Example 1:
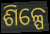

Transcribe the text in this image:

ଶିଳ୍ପେ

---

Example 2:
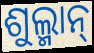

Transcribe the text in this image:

ଶୁଲ୍ମାନ୍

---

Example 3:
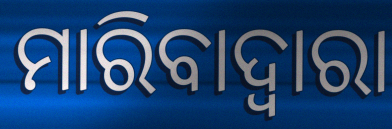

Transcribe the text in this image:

ମାରିବାଦ୍ୱାରା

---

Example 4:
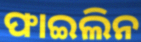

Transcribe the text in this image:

ଫାଇଲିନ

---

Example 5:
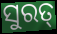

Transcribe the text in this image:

ସୁରତ୍